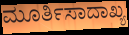
ಮೂರ್ತಿಸಾದಾಖ್ಯ